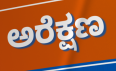
ಅರೆಕ್ಷಣ